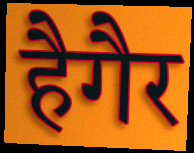
हैगैर